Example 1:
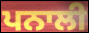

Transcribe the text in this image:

ਪਨਾਲੀ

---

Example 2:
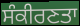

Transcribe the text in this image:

ਸੰਕੀਰਣਤਾ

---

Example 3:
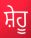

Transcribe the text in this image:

ਸ਼ੇਹੂ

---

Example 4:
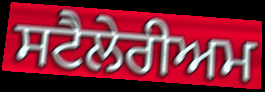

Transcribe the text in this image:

ਸਟੈਲੇਰੀਅਮ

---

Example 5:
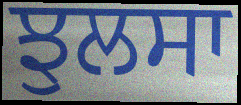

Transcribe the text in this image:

ਝੁਲਸਾ